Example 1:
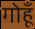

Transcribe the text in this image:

गोहूँ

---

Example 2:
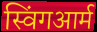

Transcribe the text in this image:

स्विंगआर्म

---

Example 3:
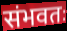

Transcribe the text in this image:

संभवतः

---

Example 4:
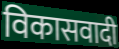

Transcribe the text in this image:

विकासवादी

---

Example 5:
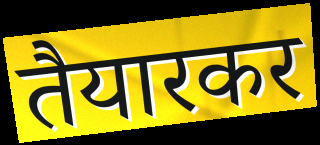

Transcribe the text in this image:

तैयारकर